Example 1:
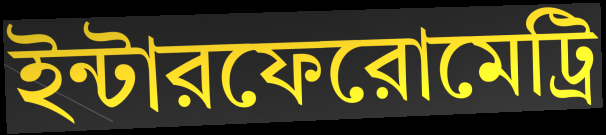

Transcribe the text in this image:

ইন্টারফেরোমেট্রি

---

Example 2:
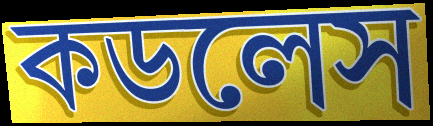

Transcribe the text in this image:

কডলেস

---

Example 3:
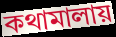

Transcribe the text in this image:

কথামালায়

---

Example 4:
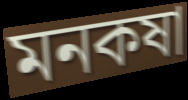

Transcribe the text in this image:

মনকষা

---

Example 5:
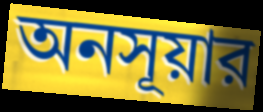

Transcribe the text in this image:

অনসূয়ার